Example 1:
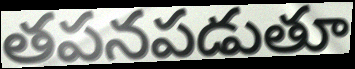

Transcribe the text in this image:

తపనపడుతూ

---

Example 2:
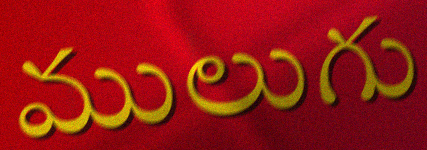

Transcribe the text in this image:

ములుగు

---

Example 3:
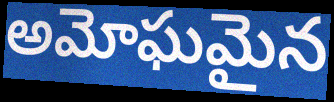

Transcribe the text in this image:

అమోఘమైన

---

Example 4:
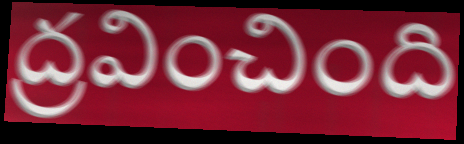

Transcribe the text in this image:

ద్రవించింది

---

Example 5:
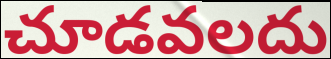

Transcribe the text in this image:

చూడవలదు